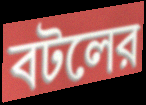
বটলের